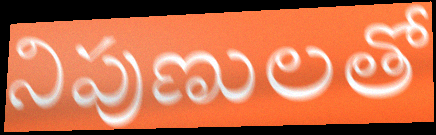
నిపుణులతో